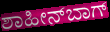
ಶಾಹೀನ್‌ಬಾಗ್